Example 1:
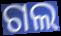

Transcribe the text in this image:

ଗଲ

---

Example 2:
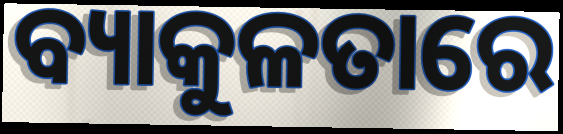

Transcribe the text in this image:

ବ୍ୟାକୁଳତାରେ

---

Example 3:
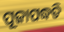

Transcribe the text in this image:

ପୂଜାପଦ୍ଧତି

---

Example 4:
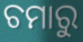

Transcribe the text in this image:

ଚମାରୁ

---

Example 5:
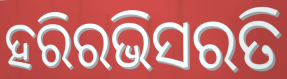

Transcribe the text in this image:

ହରିରଭିସରତି